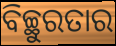
ବିଚ୍ଛୁରତାର